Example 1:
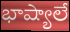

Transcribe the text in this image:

భాష్యాలే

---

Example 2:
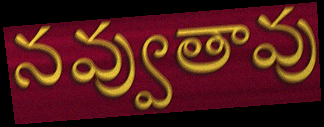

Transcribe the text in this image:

నవ్వుతావు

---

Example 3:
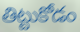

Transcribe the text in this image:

తిట్టుకోడం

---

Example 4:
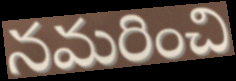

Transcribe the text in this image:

నమరించి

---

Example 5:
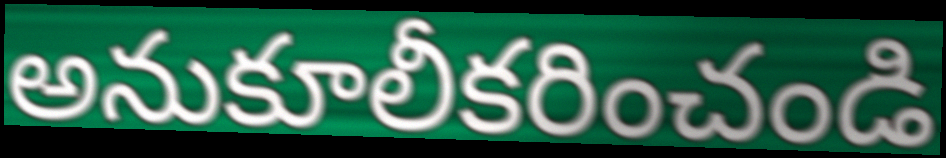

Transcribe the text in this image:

అనుకూలీకరించండి